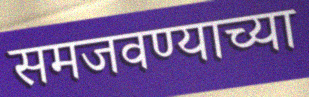
समजवण्याच्या